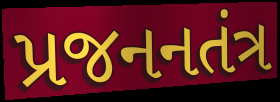
પ્રજનનતંત્ર